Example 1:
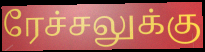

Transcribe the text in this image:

ரேச்சலுக்கு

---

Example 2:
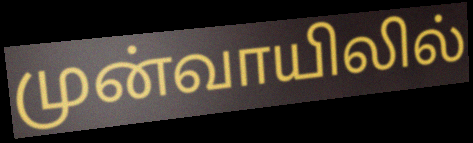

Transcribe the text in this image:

முன்வாயிலில்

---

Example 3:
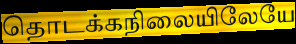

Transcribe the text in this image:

தொடக்கநிலையிலேயே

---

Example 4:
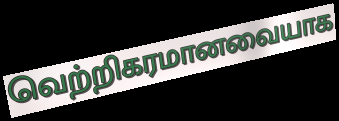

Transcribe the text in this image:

வெற்றிகரமானவையாக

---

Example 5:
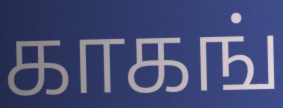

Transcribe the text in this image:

காகங்